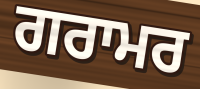
ਗਰਾਮਰ